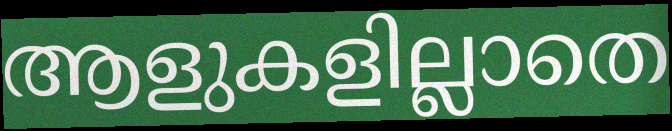
ആളുകളില്ലാതെ